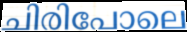
ചിരിപോലെ